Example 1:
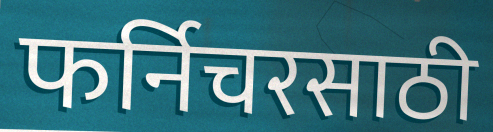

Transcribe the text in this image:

फर्निचरसाठी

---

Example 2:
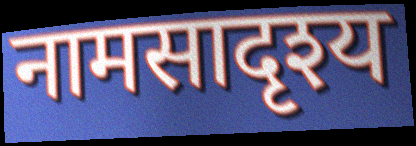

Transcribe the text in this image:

नामसादृश्य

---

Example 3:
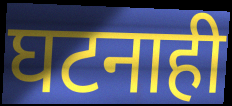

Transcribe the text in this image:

घटनाही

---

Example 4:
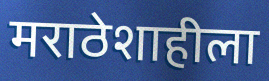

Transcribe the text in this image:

मराठेशाहीला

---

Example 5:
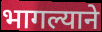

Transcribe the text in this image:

भागल्याने